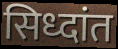
सिध्दांत